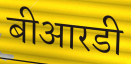
बीआरडी